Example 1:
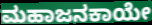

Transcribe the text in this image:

ಮಹಾಜನಕಾಯೇ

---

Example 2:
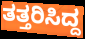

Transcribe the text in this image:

ತತ್ತರಿಸಿದ್ದ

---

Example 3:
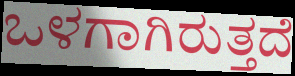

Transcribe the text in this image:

ಒಳಗಾಗಿರುತ್ತದೆ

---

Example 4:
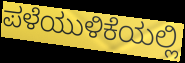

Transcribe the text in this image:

ಪಳೆಯುಳಿಕೆಯಲ್ಲಿ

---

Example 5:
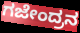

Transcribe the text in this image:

ಗಜೇಂದ್ರನ